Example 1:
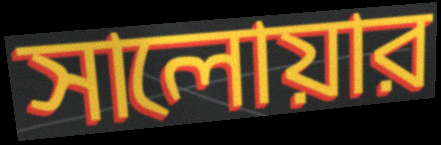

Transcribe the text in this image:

সালোয়ার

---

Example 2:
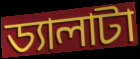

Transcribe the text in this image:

ড্যালাটা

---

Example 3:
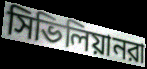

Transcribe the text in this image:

সিভিলিয়ানরা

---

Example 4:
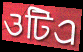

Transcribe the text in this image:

ওটিএ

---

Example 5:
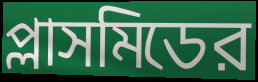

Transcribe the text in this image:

প্লাসমিডের